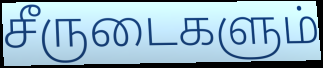
சீருடைகளும்